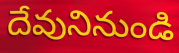
దేవునినుండి